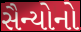
સૈન્યોનો